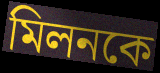
মিলনকে